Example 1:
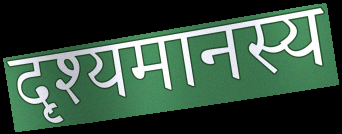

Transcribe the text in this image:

दृश्यमानस्य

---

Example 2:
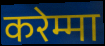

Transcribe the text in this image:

करेम्मा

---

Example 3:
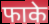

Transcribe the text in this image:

फाके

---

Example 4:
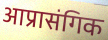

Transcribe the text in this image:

आप्रासंगिक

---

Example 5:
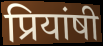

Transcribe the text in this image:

प्रियांषी